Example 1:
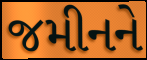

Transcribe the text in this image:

જમીનને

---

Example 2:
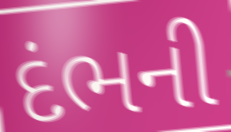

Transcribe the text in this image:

દંભની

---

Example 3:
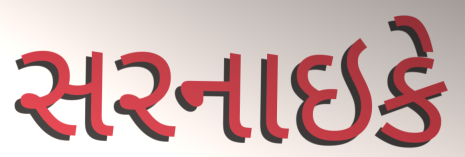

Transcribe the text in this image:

સરનાઇકે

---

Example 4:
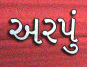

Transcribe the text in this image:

અરપું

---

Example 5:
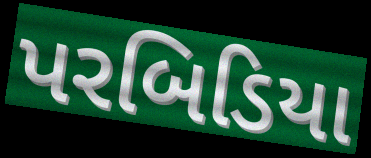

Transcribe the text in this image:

પરબિડિયા